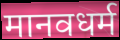
मानवधर्म